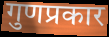
गुणप्रकार